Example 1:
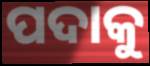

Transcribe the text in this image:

ପଦାକୁ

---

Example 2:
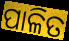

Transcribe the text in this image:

ପାଳିତ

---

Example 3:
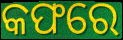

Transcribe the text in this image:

କଫରେ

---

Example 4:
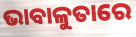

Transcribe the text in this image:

ଭାବାଳୁତାରେ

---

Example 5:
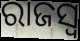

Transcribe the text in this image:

ରାଜସ୍ୱ